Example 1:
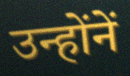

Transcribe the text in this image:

उन्‍होंनें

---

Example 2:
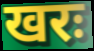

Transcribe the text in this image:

खरः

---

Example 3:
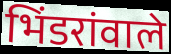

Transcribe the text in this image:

भिंडरांवाले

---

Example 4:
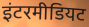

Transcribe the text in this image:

इंटरमीडियट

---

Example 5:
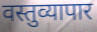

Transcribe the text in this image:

वस्तुव्यापार